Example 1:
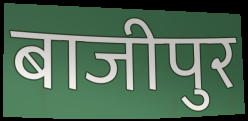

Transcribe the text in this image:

बाजीपुर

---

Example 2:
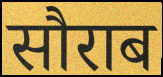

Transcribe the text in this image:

सौराब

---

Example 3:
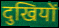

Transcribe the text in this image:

दुखियों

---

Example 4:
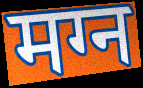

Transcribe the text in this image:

मग्‍न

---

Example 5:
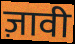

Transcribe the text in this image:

ज़ावी